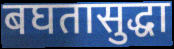
बघतासुद्धा